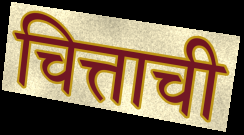
चित्ताची